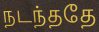
நடந்ததே